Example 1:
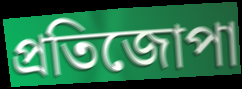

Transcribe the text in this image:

প্ৰতিজোপা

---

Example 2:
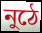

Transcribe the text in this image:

নুঠে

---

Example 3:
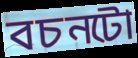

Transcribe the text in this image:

বচনটো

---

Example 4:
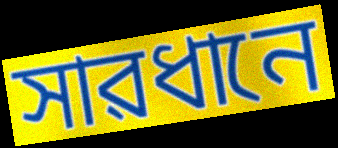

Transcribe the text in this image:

সাৱধানে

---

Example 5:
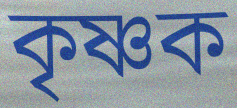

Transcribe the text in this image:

কৃষ্ণক